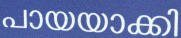
പായയാക്കി